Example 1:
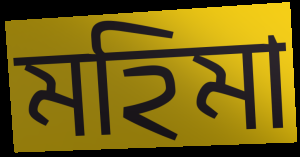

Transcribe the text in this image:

মহিমা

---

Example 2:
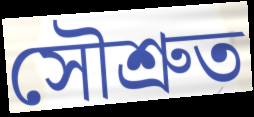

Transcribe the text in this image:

সৌশ্ৰুত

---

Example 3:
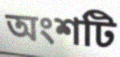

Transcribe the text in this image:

অংশটি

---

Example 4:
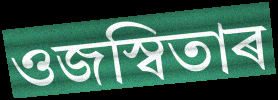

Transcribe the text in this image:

ওজস্বিতাৰ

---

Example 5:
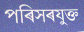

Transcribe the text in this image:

পৰিসৰযুক্ত